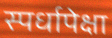
स्पर्धापेक्षा